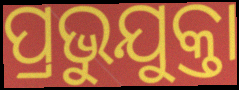
ପ୍ରଭୁଯୁକ୍ତା